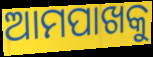
ଆମପାଖକୁ